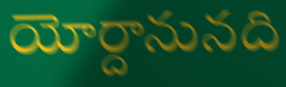
యోర్దానునది